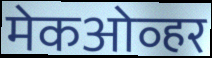
मेकओव्हर